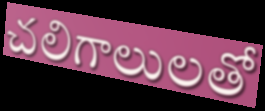
చలిగాలులతో